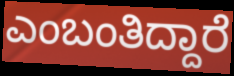
ಎಂಬಂತಿದ್ದಾರೆ